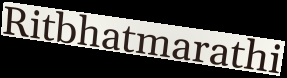
Ritbhatmarathi